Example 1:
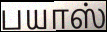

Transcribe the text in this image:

பயாஸ்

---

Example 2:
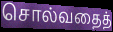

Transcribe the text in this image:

சொல்வதைத்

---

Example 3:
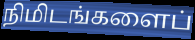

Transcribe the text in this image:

நிமிடங்களைப்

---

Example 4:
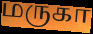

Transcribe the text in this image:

மருகா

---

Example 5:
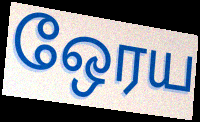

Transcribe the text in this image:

ஒேரய